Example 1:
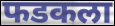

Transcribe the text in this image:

फडकला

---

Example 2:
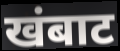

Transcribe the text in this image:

खंबाट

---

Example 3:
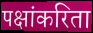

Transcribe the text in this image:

पक्षांकरिता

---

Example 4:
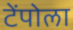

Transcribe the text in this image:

टेंपोला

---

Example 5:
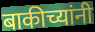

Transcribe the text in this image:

बाकीच्यांनी